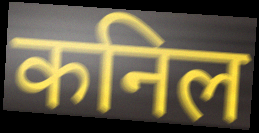
कनिल